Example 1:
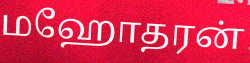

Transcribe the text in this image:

மஹோதரன்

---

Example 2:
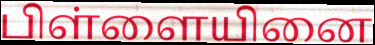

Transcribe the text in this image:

பிள்ளையினை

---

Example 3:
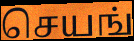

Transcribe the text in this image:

செயங்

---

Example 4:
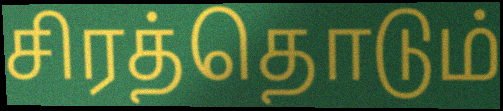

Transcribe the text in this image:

சிரத்தொடும்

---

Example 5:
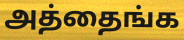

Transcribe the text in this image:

அத்தைங்க